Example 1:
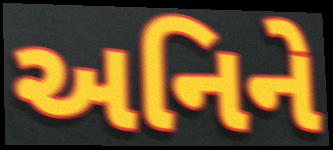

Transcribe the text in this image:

અનિને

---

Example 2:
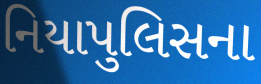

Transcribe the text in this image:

નિયાપુલિસના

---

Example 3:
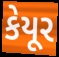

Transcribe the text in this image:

કેયૂર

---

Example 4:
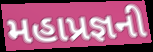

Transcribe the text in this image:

મહાપ્રજ્ઞની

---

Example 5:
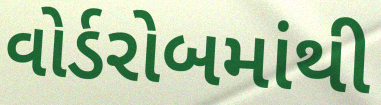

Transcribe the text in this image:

વોર્ડરોબમાંથી